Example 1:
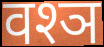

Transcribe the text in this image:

वश्ञ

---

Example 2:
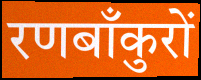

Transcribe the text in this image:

रणबाँकुरों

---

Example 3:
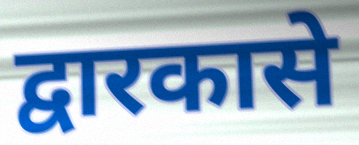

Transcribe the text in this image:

द्वारकासे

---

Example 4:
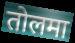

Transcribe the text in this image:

तोलमा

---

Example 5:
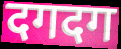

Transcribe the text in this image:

दगदग